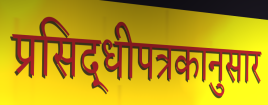
प्रसिद्धीपत्रकानुसार